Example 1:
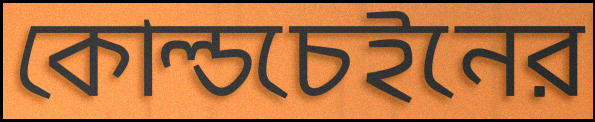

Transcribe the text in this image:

কোল্ডচেইনের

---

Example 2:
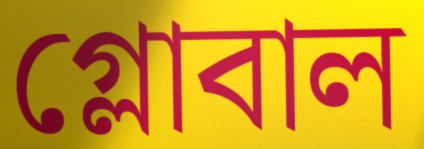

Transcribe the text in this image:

গ্লোবাল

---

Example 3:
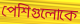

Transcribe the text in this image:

পেশিগুলোকে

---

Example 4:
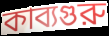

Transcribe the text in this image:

কাব্যগুরু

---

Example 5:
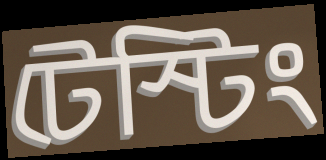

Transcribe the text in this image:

টেস্টিং